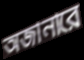
অজানারে